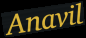
Anavil